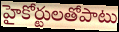
హైకోర్టులతోపాటు